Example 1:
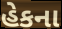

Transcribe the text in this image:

હેકના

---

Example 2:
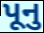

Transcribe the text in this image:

પૂનુ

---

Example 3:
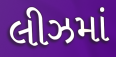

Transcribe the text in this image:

લીઝમાં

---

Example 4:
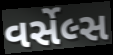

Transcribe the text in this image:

વર્સેલ્સ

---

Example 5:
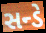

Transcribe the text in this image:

સન્ડે